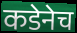
कडेनेच